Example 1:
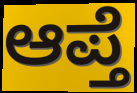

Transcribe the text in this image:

ಆಪ್ತೆ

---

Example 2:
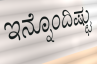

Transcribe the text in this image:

ಇನ್ನೊಂದಿಷ್ಟು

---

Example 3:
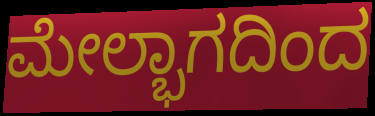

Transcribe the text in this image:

ಮೇಲ್ಭಾಗದಿಂದ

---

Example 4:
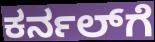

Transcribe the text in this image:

ಕರ್ನಲ್‌ಗೆ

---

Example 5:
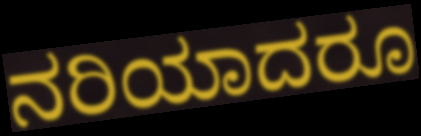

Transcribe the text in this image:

ನರಿಯಾದರೂ